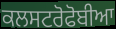
ਕਲਸਟਰੋਫੋਬੀਆ